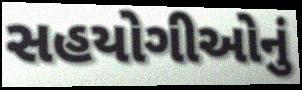
સહયોગીઓનું